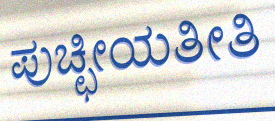
ಪುಚ್ಛೀಯತೀತಿ